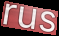
rus